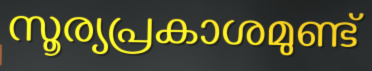
സൂര്യപ്രകാശമുണ്ട്